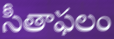
సీతాఫలం